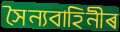
সৈন্যবাহিনীৰ